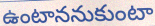
ఉంటాననుకుంటా